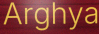
Arghya